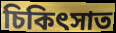
চিকিৎসাত